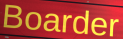
Boarder